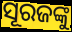
ସୂରଜଙ୍କୁ